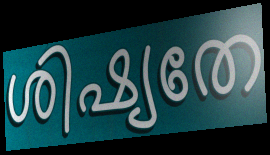
ശിഷ്യതേ